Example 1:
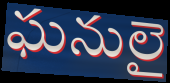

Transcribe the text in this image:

ఘనులై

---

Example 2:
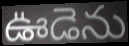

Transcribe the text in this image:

ఊడెను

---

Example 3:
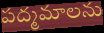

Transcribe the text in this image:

పద్మమాలను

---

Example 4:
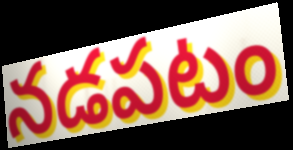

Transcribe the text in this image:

నడపటం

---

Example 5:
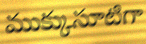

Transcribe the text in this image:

ముక్కుసూటిగా